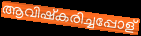
ആവിഷ്കരിച്ചപ്പോള്